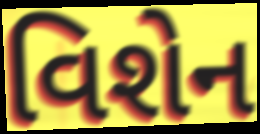
વિશેન